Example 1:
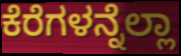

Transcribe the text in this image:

ಕೆರೆಗಳನ್ನೆಲ್ಲಾ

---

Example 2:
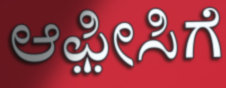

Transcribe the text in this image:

ಆಫ಼ೀಸಿಗೆ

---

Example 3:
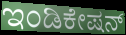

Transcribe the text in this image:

ಇಂಡಿಕೇಷನ್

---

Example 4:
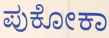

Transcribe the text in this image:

ಪುಕೋಕಾ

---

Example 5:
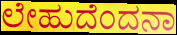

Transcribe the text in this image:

ಲೇಹುದೆಂದನಾ